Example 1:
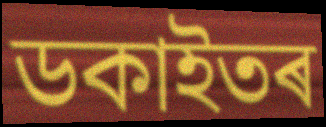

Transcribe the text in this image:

ডকাইতৰ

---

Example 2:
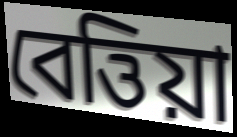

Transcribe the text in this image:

বেত্তিয়া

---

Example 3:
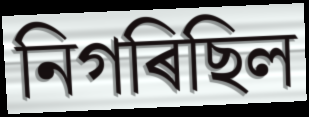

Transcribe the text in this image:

নিগৰিছিল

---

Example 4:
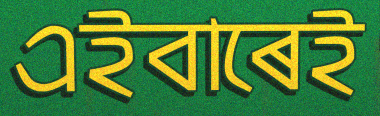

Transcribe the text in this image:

এইবাৰেই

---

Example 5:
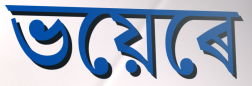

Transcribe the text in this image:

ভয়েৰে